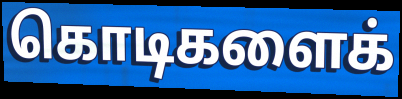
கொடிகளைக்